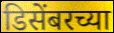
डिसेंबरच्या